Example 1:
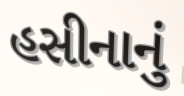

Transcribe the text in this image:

હસીનાનું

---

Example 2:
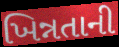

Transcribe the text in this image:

ખિન્નતાની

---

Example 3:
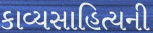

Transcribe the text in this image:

કાવ્યસાહિત્યની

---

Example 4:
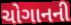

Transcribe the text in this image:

ચોગાનની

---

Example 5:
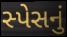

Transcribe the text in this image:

સ્પેસનું